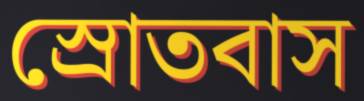
স্রোতবাস